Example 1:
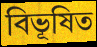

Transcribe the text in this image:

বিভূষিত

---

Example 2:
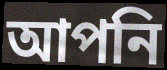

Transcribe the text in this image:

আপনি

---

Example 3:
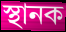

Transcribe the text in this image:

স্থানক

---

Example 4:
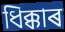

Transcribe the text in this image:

ধিক্কাৰ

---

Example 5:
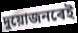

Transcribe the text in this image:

দুয়োজনৰেই